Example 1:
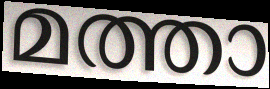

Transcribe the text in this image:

മത്താ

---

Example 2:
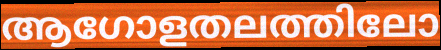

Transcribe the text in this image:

ആഗോളതലത്തിലോ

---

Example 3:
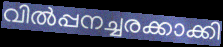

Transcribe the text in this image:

വിൽപ്പനച്ചരക്കാക്കി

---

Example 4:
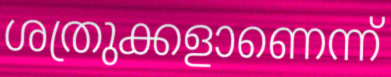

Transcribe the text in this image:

ശത്രുക്കളാണെന്ന്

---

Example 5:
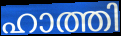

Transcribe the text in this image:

ഹാത്തി